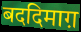
बददिमाग़